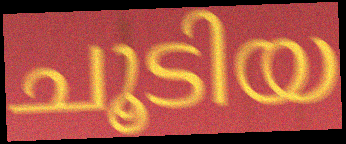
ചൂടിയ